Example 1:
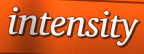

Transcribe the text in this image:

intensity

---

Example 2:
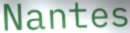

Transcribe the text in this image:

Nantes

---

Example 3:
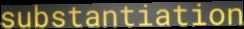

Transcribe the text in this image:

substantiation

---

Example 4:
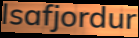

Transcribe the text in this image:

Isafjordur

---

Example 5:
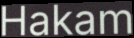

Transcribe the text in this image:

Hakam